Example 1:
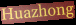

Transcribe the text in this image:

Huazhong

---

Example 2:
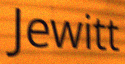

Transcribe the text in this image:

Jewitt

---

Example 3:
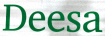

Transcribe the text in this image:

Deesa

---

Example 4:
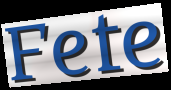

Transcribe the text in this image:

Fete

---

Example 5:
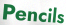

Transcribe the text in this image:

Pencils